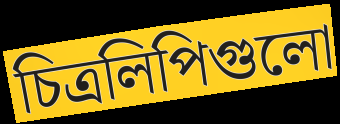
চিত্রলিপিগুলো